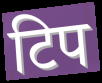
टिप